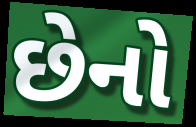
છેનો